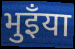
भुइँया